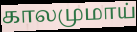
காலமுமாய்